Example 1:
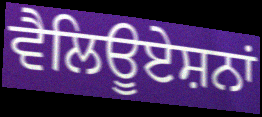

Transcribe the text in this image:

ਵੈਲਿਊਏਸ਼ਨਾਂ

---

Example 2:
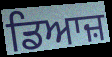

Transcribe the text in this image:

ਡਿਆਜ਼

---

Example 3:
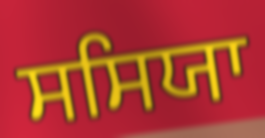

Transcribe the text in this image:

ਸਸਿਯਾ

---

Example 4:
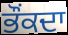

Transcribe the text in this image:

ਭੌਂਕਦਾ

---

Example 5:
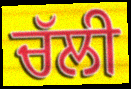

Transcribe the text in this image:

ਚੱਲੀ